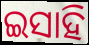
ଇସାହି